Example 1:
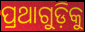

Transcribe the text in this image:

ପ୍ରଥାଗୁଡ଼ିକୁ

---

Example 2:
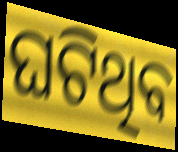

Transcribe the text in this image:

ଘଟିଥିବ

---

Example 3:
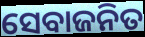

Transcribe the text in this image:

ସେବାଜନିତ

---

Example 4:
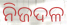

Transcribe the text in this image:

ନିଜଦଳ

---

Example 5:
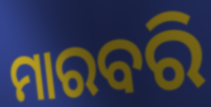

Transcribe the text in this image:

ମାରବରି